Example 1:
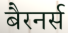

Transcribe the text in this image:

बैरनर्स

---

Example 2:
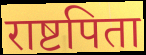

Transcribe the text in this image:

राष्टपिता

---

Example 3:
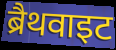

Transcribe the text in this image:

ब्रैथवाइट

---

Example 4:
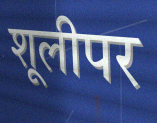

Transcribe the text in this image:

शूलीपर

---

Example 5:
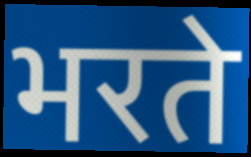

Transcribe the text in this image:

भरते